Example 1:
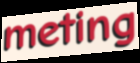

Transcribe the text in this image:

meting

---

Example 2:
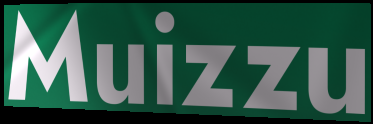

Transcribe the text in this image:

Muizzu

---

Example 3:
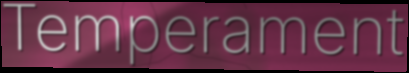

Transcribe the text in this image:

Temperament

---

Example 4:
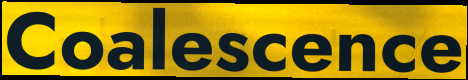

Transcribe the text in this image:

Coalescence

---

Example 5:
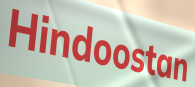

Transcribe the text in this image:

Hindoostan